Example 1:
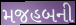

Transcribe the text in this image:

મજહબની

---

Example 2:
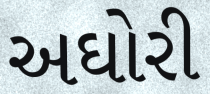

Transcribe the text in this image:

અઘોરી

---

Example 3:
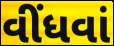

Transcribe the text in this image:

વીંધવાં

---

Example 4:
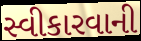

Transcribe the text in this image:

સ્વીકારવાની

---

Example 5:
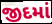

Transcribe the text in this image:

જીદમાં